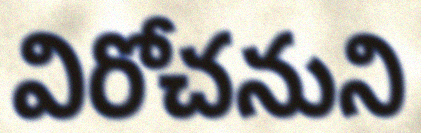
విరోచనుని